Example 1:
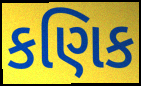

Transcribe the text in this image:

કણિક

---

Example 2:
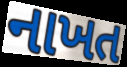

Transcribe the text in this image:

નાખત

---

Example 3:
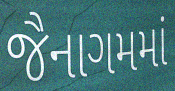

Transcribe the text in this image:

જૈનાગમમાં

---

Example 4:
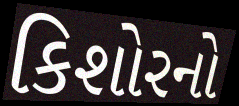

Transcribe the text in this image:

કિશોરનો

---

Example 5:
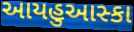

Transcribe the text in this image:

આયહુઆસ્કા